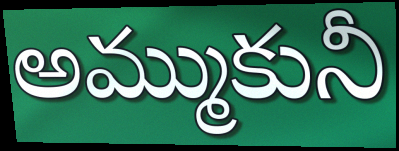
అమ్ముకునీ